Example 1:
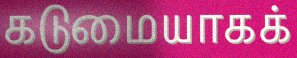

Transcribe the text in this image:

கடுமையாகக்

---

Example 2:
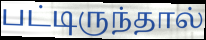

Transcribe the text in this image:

பட்டிருந்தால்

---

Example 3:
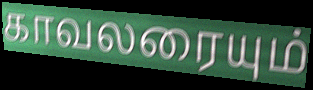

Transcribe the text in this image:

காவலரையும்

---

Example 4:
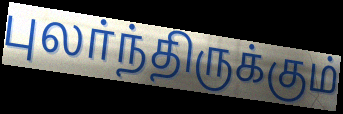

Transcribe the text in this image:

புலர்ந்திருக்கும்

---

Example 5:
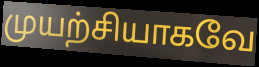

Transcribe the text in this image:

முயற்சியாகவே